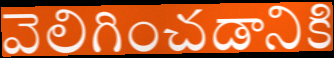
వెలిగించడానికి